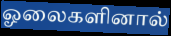
ஓலைகளினால்